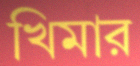
খিমার